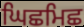
ਘਿਛਮਿਛ